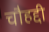
चौहद्दी